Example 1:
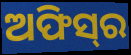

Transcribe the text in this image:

ଅଫିସ୍‌ର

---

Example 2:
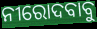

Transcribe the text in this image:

ନୀରୋଦବାବୁ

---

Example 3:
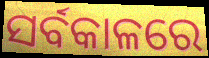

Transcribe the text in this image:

ସର୍ବକାଳରେ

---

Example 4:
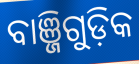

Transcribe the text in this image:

ବାଞ୍ଜିଗୁଡ଼ିକ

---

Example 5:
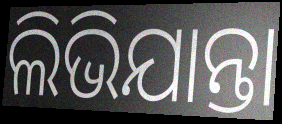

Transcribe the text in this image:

ଲିଭିଯାନ୍ତା